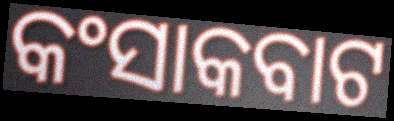
କଂସାକବାଟ